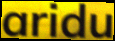
aridu